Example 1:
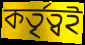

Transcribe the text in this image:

কর্তৃত্বই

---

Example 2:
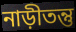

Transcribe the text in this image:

নাড়ীতন্তু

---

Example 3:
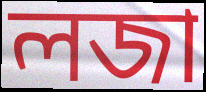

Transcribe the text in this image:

লজা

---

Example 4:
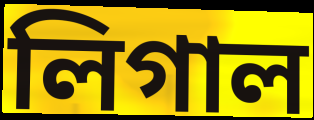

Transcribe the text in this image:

লিগাল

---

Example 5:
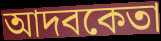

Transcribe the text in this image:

আদবকেতা